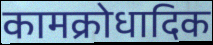
कामक्रोधादिक